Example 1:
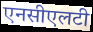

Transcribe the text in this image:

एनसीएलटी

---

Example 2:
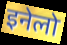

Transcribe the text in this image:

इनेलो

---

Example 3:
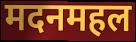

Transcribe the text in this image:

मदनमहल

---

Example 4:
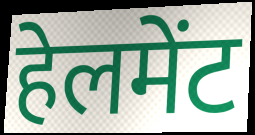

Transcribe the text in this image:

हेलमेंट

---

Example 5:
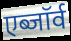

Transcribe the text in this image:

एब्जॉर्व